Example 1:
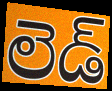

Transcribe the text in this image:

లెడ్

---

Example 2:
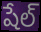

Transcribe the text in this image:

షేల్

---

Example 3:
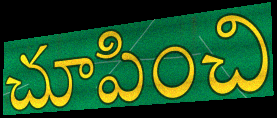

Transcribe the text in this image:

చూపించి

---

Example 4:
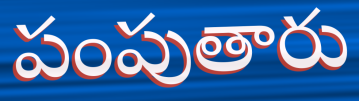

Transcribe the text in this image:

పంపుతారు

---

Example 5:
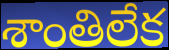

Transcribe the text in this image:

శాంతిలేక